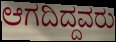
ಆಗದಿದ್ದವರು